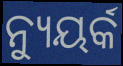
ନ୍ୟୁୟର୍କ